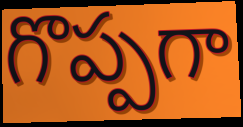
గొప్పగా